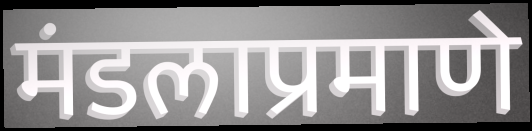
मंडलाप्रमाणे